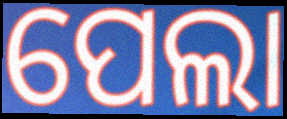
ପେଲା